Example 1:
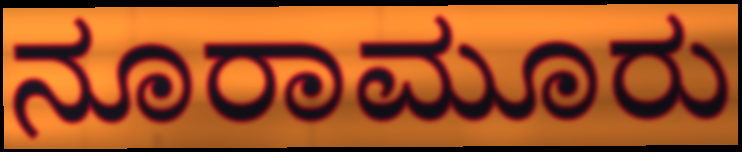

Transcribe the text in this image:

ನೂರಾಮೂರು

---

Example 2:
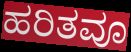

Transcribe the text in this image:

ಹರಿತವೂ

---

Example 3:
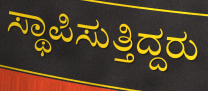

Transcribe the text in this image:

ಸ್ಥಾಪಿಸುತ್ತಿದ್ದರು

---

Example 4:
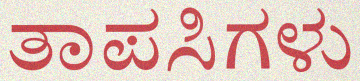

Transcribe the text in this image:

ತಾಪಸಿಗಳು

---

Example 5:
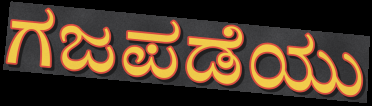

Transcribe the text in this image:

ಗಜಪಡೆಯು